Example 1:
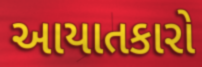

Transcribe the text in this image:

આયાતકારો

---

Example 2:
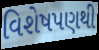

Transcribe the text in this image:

વિશેષપણથી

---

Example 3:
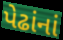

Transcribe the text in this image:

પેઢાંનાં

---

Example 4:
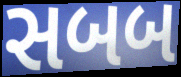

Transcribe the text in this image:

સબબ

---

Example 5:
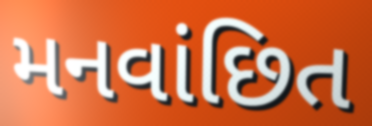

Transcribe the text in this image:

મનવાંછિત